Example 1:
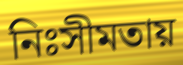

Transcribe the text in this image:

নিঃসীমতায়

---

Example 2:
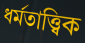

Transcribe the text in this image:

ধর্মতাত্ত্বিক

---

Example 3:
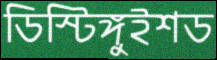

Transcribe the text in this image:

ডিস্টিঙ্গুইশড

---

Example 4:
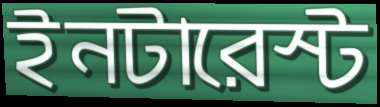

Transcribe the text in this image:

ইনটারেস্ট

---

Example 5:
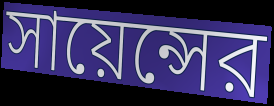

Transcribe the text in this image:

সায়েন্সের